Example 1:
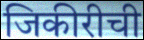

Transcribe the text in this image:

जिकीरीची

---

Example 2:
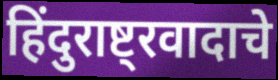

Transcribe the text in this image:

हिंदुराष्ट्रवादाचे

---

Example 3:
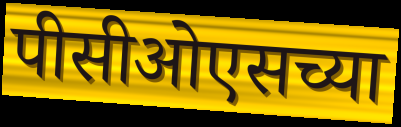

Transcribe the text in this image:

पीसीओएसच्या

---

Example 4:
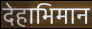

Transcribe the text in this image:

देहाभिमान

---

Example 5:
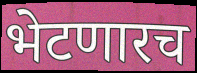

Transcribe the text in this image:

भेटणारच